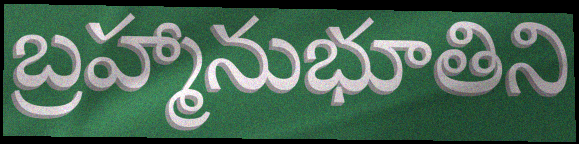
బ్రహ్మానుభూతిని